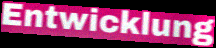
Entwicklung